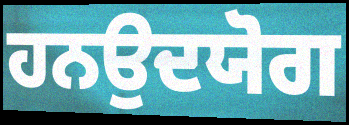
ਹਨਉਦਯੋਗ